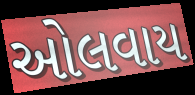
ઓલવાય